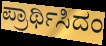
ಪ್ರಾರ್ಥಿಸಿದಂ